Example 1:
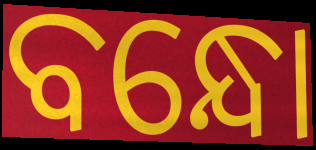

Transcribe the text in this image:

ବନ୍ଧୋ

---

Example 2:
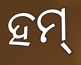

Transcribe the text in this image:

ହମ୍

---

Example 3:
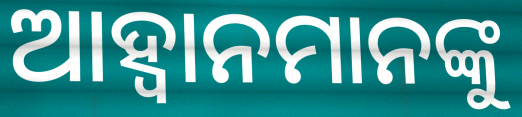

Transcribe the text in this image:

ଆହ୍ୱାନମାନଙ୍କୁ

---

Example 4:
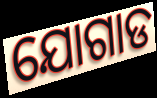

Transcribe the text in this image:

ଯୋଗାଡ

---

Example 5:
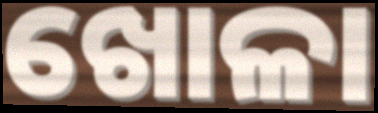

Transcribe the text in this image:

ଖୋଳା